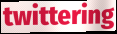
twittering